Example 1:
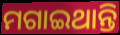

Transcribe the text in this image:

ମଗାଇଥାନ୍ତି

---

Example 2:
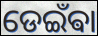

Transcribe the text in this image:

ଡେଇଁଵା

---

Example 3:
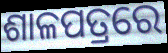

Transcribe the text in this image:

ଶାଳପତ୍ରରେ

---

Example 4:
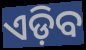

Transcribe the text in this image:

ଏଡ଼ିବ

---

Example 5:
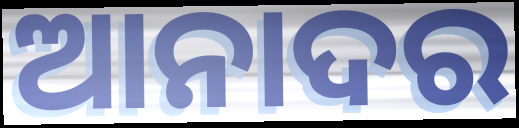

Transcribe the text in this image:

ଆନାଦର